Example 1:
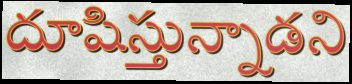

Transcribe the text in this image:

దూషిస్తున్నాడని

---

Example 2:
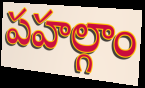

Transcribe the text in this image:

పహల్గాం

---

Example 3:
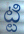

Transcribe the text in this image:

ట్టి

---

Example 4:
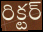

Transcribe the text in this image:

రిక్టర్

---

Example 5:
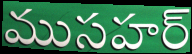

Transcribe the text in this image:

ముసహర్